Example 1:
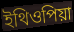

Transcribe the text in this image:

ইথিওপিয়া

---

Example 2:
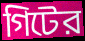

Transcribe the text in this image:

গিটের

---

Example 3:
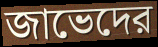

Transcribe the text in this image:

জাভেদের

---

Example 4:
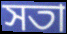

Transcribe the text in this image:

সতা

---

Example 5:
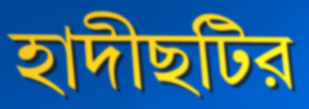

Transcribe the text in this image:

হাদীছটির